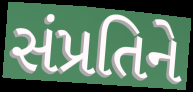
સંપ્રતિને